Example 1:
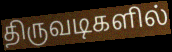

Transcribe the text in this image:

திருவடிகளில்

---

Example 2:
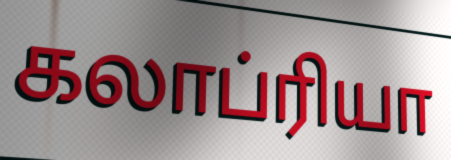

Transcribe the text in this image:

கலாப்ரியா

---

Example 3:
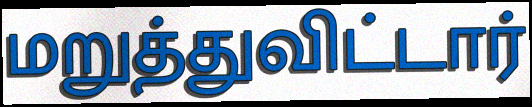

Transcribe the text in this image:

மறுத்துவிட்டார்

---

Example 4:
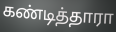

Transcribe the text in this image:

கண்டித்தாரா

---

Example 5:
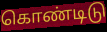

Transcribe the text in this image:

கொண்டிடு